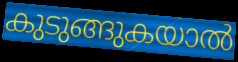
കുടുങ്ങുകയാൽ